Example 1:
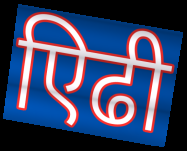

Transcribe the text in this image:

एिढी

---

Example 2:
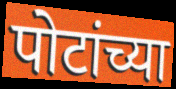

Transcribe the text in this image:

पोटांच्या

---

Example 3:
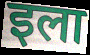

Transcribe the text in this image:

इला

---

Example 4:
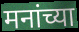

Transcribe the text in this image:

मनांच्या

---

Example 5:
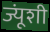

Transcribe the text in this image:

ज्यूंशी